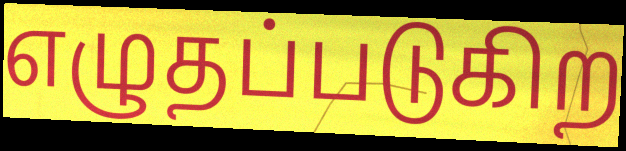
எழுதப்படுகிற